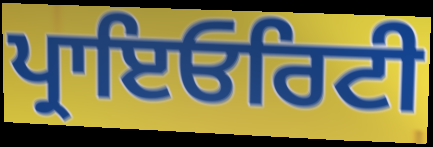
ਪ੍ਰਾਇਓਰਿਟੀ